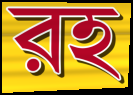
রহ